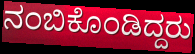
ನಂಬಿಕೊಂಡಿದ್ದರು